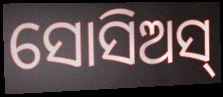
ସୋସିଅସ୍